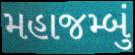
મહાજમ્બું